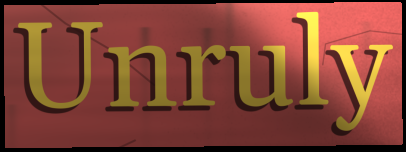
Unruly